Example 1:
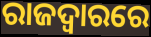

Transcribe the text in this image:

ରାଜଦ୍ୱାରରେ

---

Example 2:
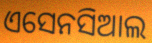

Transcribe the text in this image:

ଏସେନସିଆଲ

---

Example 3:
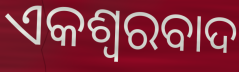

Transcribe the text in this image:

ଏକଶ୍ୱରବାଦ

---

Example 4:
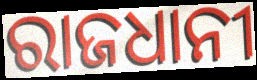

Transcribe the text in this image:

ରାଜଧାନୀ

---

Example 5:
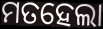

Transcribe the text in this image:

ମତହେଲା